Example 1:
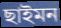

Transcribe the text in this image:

ছাইমন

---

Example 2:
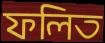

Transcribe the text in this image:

ফলিত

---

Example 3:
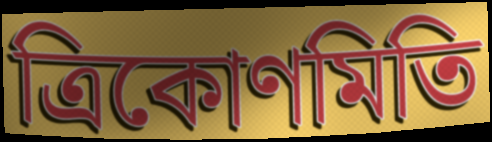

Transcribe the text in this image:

ত্ৰিকোণমিতি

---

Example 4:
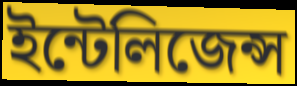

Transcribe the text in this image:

ইন্টেলিজেন্স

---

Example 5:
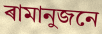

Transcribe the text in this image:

ৰামানুজনে